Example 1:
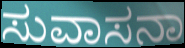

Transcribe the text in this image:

ಸುವಾಸನಾ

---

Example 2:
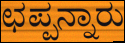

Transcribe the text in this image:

ಛಪ್ಪನ್ನಾರು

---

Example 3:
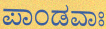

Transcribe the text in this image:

ಪಾಂಡವಾಃ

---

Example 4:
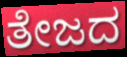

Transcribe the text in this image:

ತೇಜದ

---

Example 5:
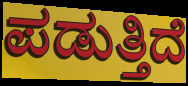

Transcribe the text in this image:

ಪಡುತ್ತಿದೆ